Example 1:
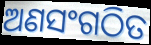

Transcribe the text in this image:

ଅଣସଂଗଠିତ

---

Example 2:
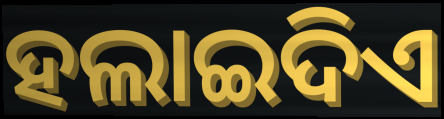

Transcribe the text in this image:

ହଲାଇଦିଏ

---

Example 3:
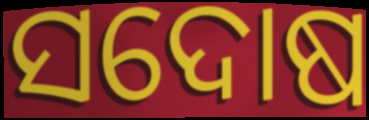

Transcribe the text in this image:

ସଦୋଷ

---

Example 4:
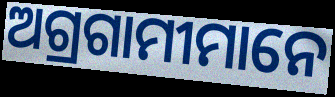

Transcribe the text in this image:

ଅଗ୍ରଗାମୀମାନେ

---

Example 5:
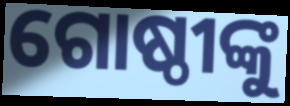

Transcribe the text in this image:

ଗୋଷ୍ଠୀଙ୍କୁ